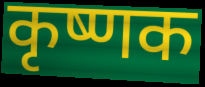
कृष्णक